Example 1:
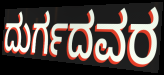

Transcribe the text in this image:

ದುರ್ಗದವರ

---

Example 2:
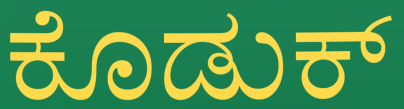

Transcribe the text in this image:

ಕೊಡುಕ್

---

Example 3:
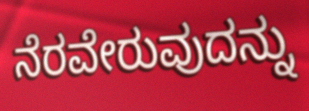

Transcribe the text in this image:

ನೆರವೇರುವುದನ್ನು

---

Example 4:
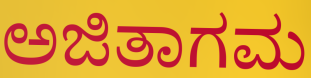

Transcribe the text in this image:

ಅಜಿತಾಗಮ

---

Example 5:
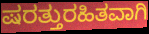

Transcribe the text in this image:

ಷರತ್ತುರಹಿತವಾಗಿ